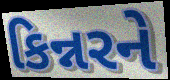
કિન્નરને